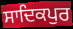
ਸਾਦਿਕਪੁਰ